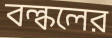
বল্কলের